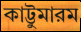
কাট্টুমারম